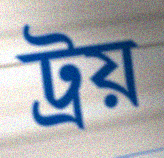
ট্রয়